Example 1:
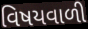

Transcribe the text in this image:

વિષયવાળી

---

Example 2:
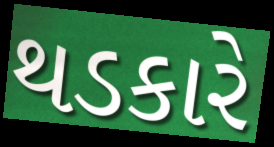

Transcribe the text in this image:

થડકારે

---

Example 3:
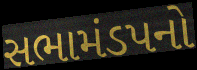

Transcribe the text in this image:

સભામંડપનો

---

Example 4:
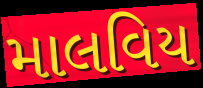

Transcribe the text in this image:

માલવિય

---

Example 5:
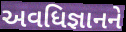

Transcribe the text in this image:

અવધિજ્ઞાનને